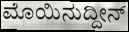
ಮೊಯಿನುದ್ದೀನ್